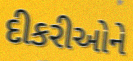
દીકરીઓને